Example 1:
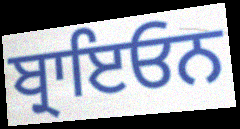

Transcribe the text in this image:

ਬ੍ਰਾਇਓਨ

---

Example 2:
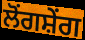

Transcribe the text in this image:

ਲੋਂਗਸ਼ੇਂਗ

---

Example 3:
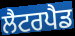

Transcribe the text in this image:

ਲੈਟਰਪੈਡ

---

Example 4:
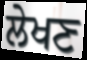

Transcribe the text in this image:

ਲੇਖਣ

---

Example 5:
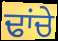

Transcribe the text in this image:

ਢਾਂਚੇ